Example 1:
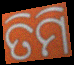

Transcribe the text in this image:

ତିମି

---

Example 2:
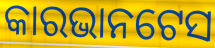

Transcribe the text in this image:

କାରଭାନଟେସ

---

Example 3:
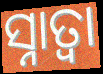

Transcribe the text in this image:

ସ୍ନାତ୍ବା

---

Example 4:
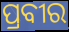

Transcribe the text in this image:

ପ୍ରବୀର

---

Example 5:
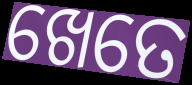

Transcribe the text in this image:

ଖେତେ